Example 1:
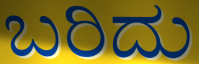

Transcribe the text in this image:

ಬರಿದು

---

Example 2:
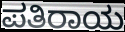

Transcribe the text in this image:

ಪತಿರಾಯ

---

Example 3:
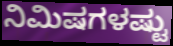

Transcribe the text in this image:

ನಿಮಿಷಗಳಷ್ಟು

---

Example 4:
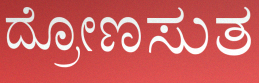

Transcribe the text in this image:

ದ್ರೋಣಸುತ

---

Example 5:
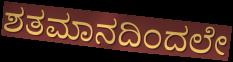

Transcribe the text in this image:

ಶತಮಾನದಿಂದಲೇ